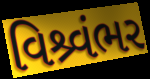
વિશ્ર્વંભર